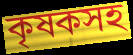
কৃষকসহ